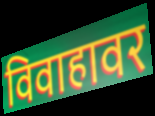
विवाहावर